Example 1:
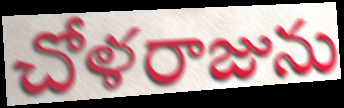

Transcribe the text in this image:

చోళరాజును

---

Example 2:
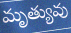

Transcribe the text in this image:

మృత్యువు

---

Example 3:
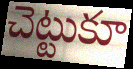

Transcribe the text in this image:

చెట్టుకూ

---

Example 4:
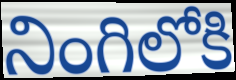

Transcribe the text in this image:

నింగిలోకి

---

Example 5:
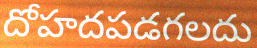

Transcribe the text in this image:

దోహదపడగలదు